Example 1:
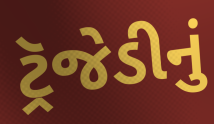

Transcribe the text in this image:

ટ્રૅજેડીનું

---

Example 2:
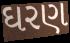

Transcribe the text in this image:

ઘરણ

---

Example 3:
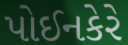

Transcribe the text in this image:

પોઈનકેરે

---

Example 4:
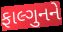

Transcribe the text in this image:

ફાલ્ગુનને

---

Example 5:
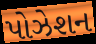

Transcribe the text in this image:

પોઝેશન